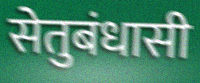
सेतुबंधासी